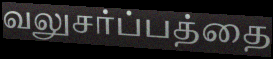
வலுசர்ப்பத்தை